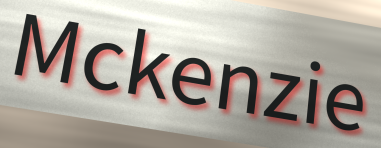
Mckenzie